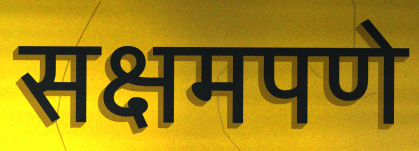
सक्षमपणे